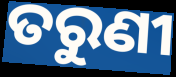
ତରୁଣୀ